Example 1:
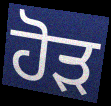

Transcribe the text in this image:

ਹੋੜ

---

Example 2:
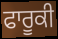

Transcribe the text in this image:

ਫਾਰੂਕੀ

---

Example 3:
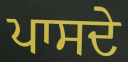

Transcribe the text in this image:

ਪਾਸਦੇ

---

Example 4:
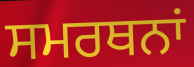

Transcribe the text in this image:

ਸਮਰਥਨਾਂ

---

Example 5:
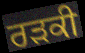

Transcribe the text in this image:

ਰੜਕੀ